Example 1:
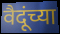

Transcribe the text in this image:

वैदूंच्या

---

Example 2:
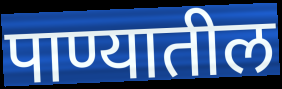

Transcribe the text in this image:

पाण्यातील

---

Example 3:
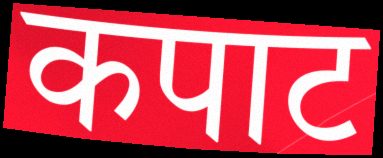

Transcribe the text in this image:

कपाट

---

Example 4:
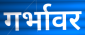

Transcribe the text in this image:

गर्भावर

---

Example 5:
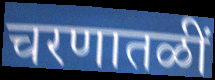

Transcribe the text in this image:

चरणातळीं